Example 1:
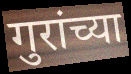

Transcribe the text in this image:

गुरांच्या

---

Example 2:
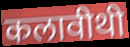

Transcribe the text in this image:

कलावीथी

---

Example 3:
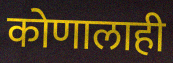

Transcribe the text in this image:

कोणालाही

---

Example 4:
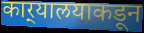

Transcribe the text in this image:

कार्यालयाकडून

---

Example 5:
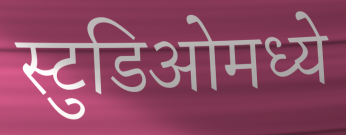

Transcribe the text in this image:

स्टुडिओमध्ये